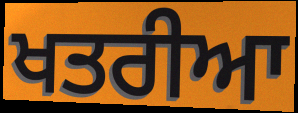
ਖਤਰੀਆ